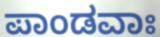
ಪಾಂಡವಾಃ